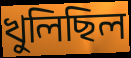
খুলিছিল